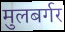
मुलबर्गर